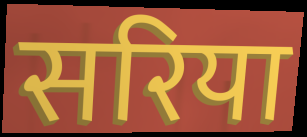
सरिया